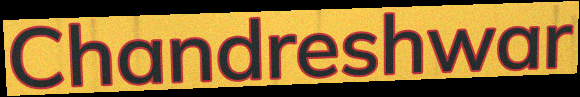
Chandreshwar